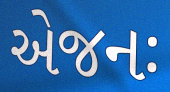
એજનઃ